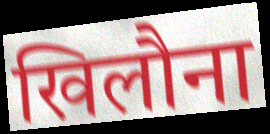
खिलौना